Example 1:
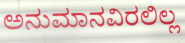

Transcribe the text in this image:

ಅನುಮಾನವಿರಲಿಲ್ಲ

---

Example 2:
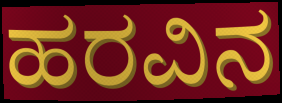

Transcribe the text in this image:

ಹರವಿನ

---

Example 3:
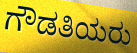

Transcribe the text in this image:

ಗೌಡತಿಯರು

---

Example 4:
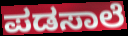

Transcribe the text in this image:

ಪಡಸಾಲೆ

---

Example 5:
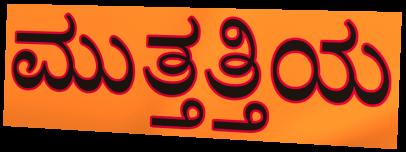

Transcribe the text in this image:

ಮುತ್ತತ್ತಿಯ